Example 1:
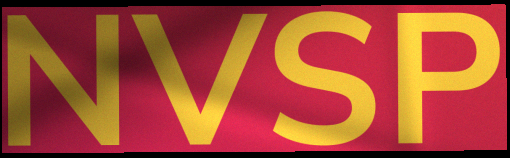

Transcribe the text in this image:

NVSP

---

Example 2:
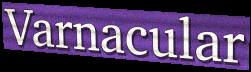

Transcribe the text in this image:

Varnacular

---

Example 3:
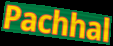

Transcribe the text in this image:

Pachhal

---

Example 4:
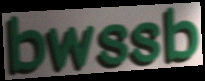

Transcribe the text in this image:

bwssb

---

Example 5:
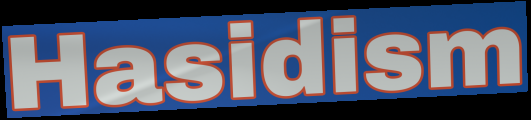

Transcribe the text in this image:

Hasidism